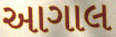
આગાલ